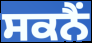
ਸਕਨੈਂ